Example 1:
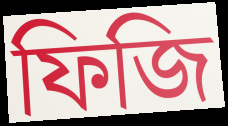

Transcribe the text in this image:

ফিজি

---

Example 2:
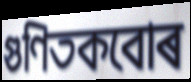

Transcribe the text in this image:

গুণিতকবোৰ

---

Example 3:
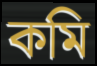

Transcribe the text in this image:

কমি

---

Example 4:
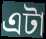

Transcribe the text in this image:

এটা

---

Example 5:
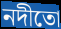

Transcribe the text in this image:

নদীতো